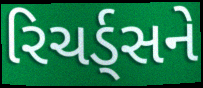
રિચર્ડ્સને